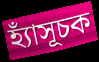
হ্যাঁসূচক